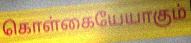
கொள்கையேயாகும்